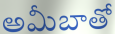
అమీబాతో